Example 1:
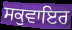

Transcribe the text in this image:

ਸਕੁਵਾਇਰ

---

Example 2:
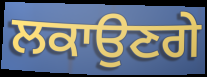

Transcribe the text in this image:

ਲਕਾਉਣਗੇ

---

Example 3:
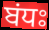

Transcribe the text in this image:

ਬਂਧਃ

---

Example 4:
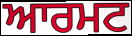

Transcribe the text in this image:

ਆਰਮਟ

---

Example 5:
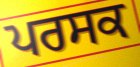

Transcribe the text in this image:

ਪਰਸਕ